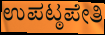
ಉಪಟ್ಠಪೇತಿ